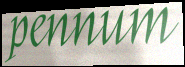
pennum